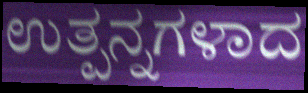
ಉತ್ಪನ್ನಗಳಾದ